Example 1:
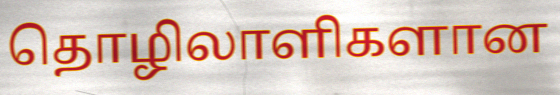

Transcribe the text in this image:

தொழிலாளிகளான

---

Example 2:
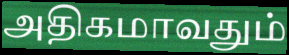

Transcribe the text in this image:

அதிகமாவதும்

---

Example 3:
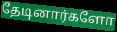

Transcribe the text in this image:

தேடினார்களோ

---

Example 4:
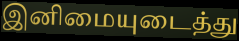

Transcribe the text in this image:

இனிமையுடைத்து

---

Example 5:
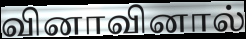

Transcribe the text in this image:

வினாவினால்